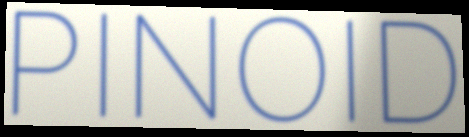
PINOID